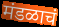
मंडळाचं